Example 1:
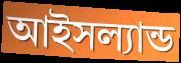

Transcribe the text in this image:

আইসল্যান্ড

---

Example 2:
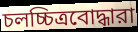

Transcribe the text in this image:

চলচ্চিত্রবোদ্ধারা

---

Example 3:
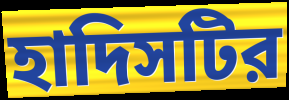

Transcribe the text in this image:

হাদিসটির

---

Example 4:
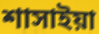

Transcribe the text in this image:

শাসাইয়া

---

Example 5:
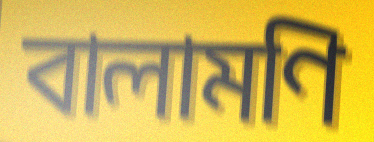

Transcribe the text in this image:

বালামণি